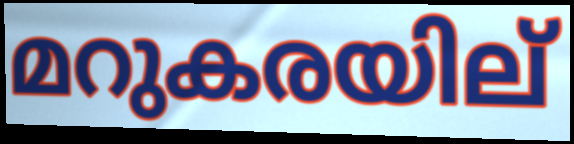
മറുകരയില്